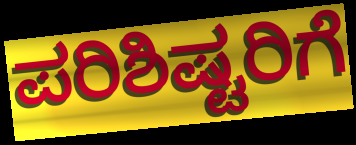
ಪರಿಶಿಷ್ಟರಿಗೆ